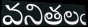
వనితలఁ